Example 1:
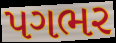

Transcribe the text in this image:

પગભર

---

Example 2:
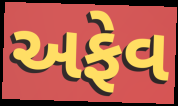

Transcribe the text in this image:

અફેવ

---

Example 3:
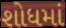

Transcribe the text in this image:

શોધમાં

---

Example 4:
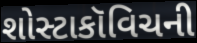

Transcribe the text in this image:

શોસ્ટાકૉવિચની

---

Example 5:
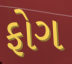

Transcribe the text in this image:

ફોગ